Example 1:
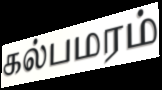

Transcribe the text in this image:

கல்பமரம்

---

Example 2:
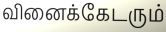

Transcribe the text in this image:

வினைக்கேடரும்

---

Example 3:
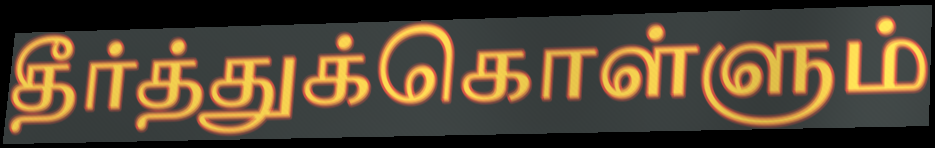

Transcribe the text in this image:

தீர்த்துக்கொள்ளும்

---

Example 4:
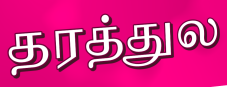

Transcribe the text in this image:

தரத்துல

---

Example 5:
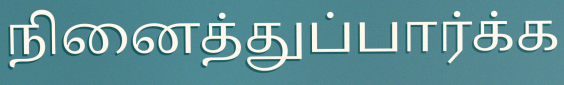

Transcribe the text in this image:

நினைத்துப்பார்க்க